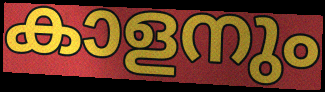
കാളനും